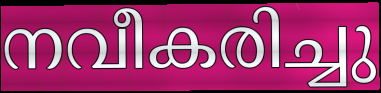
നവീകരിച്ചു